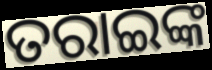
ତରାଇଙ୍କ